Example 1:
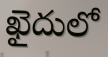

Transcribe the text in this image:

ఖైదులో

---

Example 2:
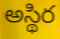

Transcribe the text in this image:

అస్థిర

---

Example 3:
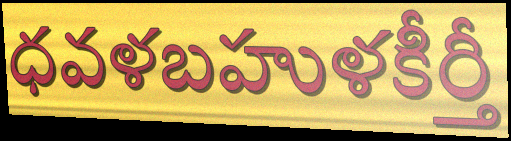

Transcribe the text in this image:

ధవళబహుళకీర్తీ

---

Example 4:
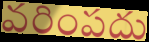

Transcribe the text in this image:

వరింపదు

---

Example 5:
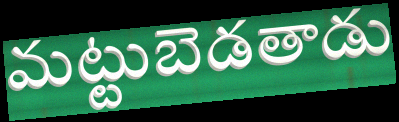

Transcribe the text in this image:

మట్టుబెడతాడు